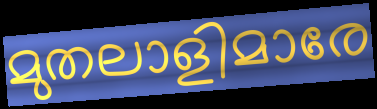
മുതലാളിമാരേ